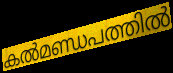
കൽമണ്ഡപത്തിൽ